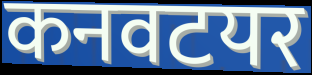
कनवटयर